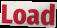
Load